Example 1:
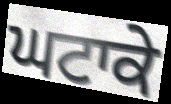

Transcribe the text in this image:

ਘਟਾਕੇ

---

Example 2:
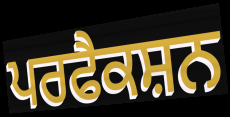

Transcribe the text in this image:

ਪਰਫੈਕਸ਼ਨ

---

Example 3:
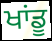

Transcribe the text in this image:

ਖਾਂਡੂ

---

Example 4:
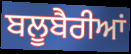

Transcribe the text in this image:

ਬਲੂਬੈਰੀਆਂ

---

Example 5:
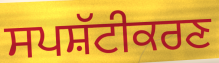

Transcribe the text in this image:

ਸਪਸ਼ੱਟੀਕਰਣ